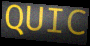
QUIC